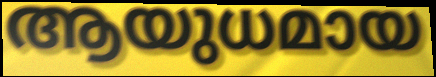
ആയുധമായ